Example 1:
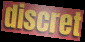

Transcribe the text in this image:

discret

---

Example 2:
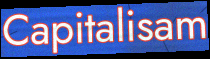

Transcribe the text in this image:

Capitalisam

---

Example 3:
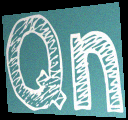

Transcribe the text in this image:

Qn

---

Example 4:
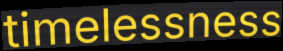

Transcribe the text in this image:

timelessness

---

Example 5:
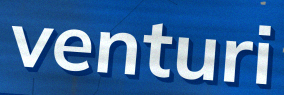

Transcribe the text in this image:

venturi